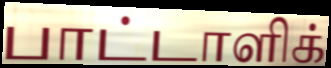
பாட்டாளிக்